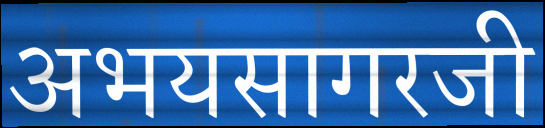
अभयसागरजी